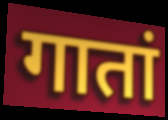
गातां